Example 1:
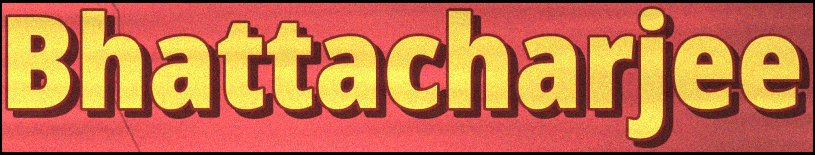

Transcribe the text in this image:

Bhattacharjee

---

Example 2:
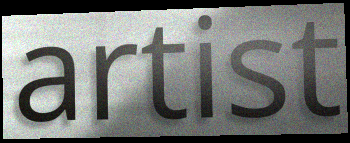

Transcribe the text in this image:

artist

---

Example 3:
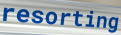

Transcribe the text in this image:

resorting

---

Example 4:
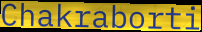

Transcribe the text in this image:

Chakraborti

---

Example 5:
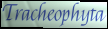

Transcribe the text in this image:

Tracheophyta